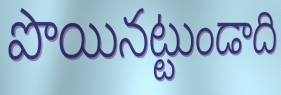
పొయినట్టుండాది